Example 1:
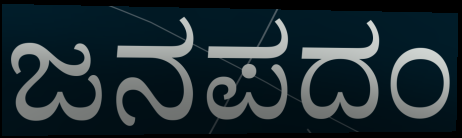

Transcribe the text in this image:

ಜನಪದಂ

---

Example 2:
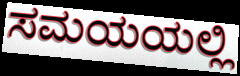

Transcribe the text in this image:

ಸಮಯಯಲ್ಲಿ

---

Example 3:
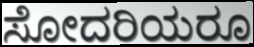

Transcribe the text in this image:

ಸೋದರಿಯರೂ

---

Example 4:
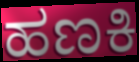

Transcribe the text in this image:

ಹಣಕಿ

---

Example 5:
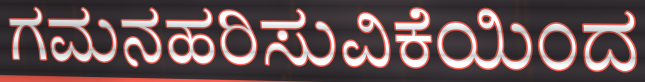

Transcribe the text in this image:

ಗಮನಹರಿಸುವಿಕೆಯಿಂದ